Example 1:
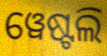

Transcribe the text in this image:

ୱେଷ୍ଟଲି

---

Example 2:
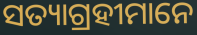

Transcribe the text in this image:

ସତ୍ୟାଗ୍ରହୀମାନେ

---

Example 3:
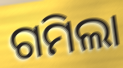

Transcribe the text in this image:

ଗମିଲା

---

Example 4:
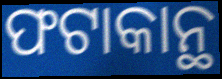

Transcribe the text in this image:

ଫଟାକାନ୍ଥ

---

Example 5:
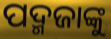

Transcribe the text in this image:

ପଦ୍ମଜାଙ୍କୁ